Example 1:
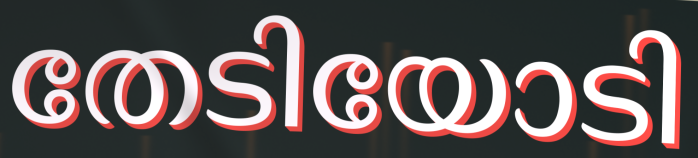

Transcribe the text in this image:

തേടിയോടി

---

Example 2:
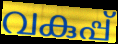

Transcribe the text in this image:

വകുപ്പ്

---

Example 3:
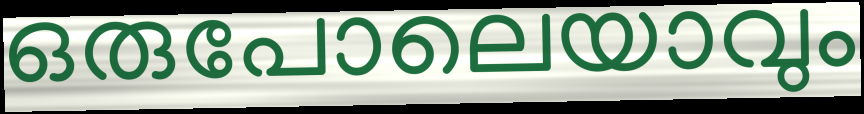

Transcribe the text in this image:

ഒരുപോലെയാവും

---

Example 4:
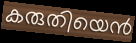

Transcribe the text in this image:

കരുതിയെൻ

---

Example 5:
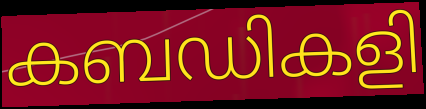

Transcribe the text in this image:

കബഡികളി